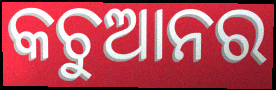
କଚୁଆନର